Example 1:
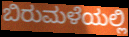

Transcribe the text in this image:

ಬಿರುಮಳೆಯಲ್ಲಿ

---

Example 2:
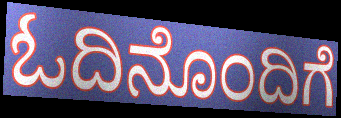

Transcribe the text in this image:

ಓದಿನೊಂದಿಗೆ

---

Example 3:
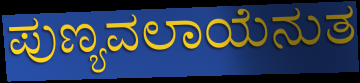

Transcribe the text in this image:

ಪುಣ್ಯವಲಾಯೆನುತ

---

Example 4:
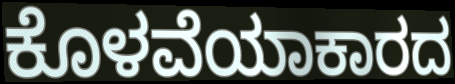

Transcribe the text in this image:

ಕೊಳವೆಯಾಕಾರದ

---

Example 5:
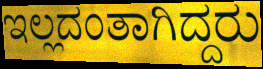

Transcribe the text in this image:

ಇಲ್ಲದಂತಾಗಿದ್ದರು